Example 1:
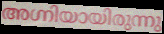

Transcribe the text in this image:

അഗ്നിയായിരുന്നു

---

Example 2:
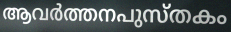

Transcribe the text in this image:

ആവർത്തനപുസ്തകം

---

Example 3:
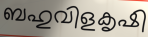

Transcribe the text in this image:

ബഹുവിളകൃഷി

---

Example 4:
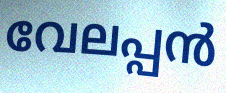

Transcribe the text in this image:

വേലപ്പൻ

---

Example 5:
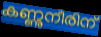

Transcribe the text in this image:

കണ്ണുനീരിന്